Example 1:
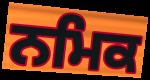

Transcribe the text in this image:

ਨਮਿਕ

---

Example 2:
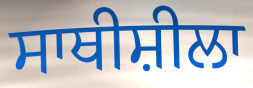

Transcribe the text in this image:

ਸਾਥੀਸ਼ੀਲਾ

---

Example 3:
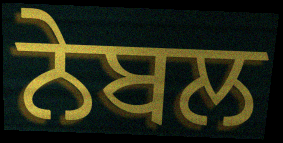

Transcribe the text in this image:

ਨੇਬਲ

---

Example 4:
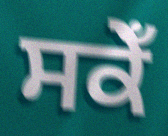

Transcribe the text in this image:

ਸਕੇਁ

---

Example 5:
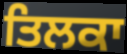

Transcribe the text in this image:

ਤਿਲਕਾ